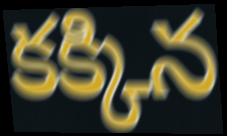
కక్కిన